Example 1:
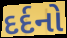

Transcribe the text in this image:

દર્દનો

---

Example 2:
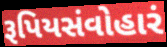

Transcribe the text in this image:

રૂપિયસંવોહારં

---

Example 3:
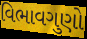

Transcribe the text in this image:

વિભાવગુણો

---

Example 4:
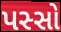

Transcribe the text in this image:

પસ્સો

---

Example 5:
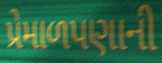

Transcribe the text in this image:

પ્રેમાળપણાની